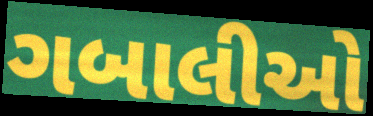
ગબાલીઓ